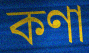
কণা